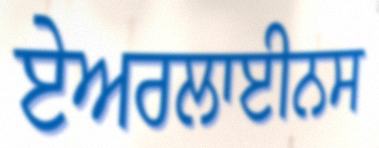
ਏਅਰਲਾਈਨਸ